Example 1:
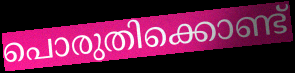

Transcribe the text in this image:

പൊരുതിക്കൊണ്ട്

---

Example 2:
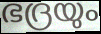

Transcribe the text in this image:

ഭദ്രയും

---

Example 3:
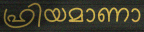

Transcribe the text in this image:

ഹ്രിയമാണാ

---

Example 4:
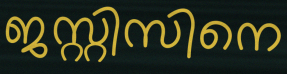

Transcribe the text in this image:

ജസ്റ്റിസിനെ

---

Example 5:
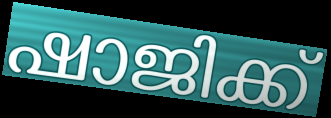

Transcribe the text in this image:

ഷാജിക്ക്